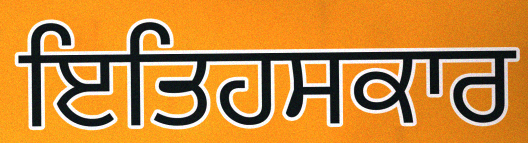
ਇਤਿਹਸਕਾਰ